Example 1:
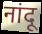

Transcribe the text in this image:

नांदू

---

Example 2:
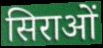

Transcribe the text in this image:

सिराओं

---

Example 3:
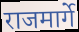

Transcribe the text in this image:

राजमार्गे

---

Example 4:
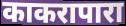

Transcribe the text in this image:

काकरापारा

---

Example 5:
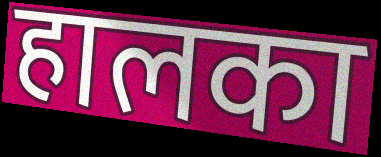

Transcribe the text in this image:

हालका